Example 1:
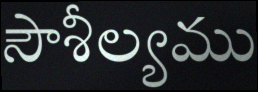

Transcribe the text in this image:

సౌశీల్యము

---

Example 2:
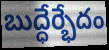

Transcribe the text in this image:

బుద్ధేర్భేదం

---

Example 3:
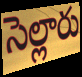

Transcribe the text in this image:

సెల్లారు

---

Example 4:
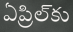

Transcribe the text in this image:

ఏప్రిల్‌కు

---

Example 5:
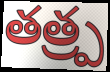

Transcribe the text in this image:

తత్ర్ప